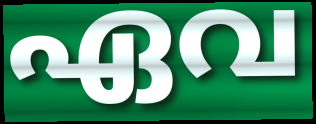
ഏവ